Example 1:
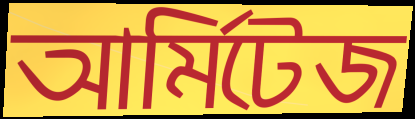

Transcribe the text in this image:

আর্মিটেজ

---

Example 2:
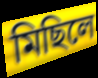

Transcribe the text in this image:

মিছিলে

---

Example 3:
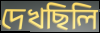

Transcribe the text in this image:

দেখছিলি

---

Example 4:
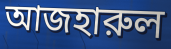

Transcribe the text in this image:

আজহারুল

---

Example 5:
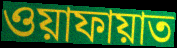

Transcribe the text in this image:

ওয়াফায়াত